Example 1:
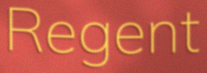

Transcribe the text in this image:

Regent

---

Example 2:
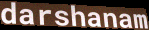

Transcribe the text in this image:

darshanam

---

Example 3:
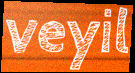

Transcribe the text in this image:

veyil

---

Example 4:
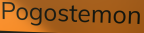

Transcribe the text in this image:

Pogostemon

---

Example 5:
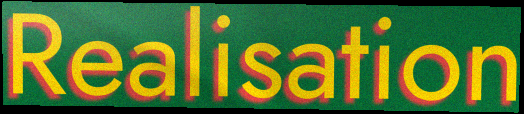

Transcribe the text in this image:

Realisation